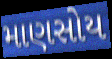
માણસોય